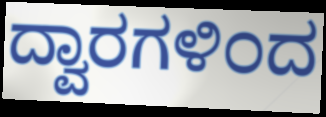
ದ್ವಾರಗಳಿಂದ